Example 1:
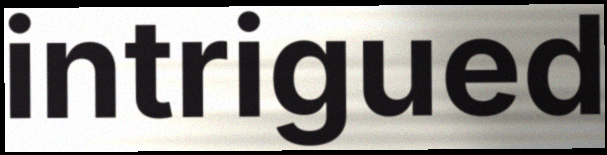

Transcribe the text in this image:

intrigued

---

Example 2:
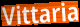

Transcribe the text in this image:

Vittaria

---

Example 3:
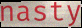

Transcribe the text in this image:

nasty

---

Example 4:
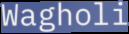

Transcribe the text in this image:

Wagholi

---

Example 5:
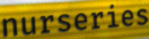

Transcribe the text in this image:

nurseries